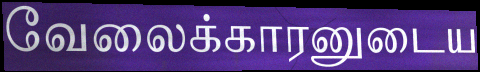
வேலைக்காரனுடைய